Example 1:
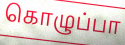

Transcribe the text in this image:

கொழுப்பா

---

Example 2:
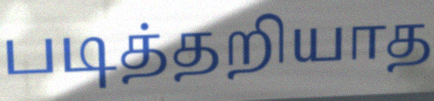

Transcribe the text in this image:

படித்தறியாத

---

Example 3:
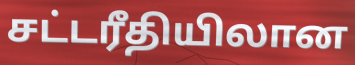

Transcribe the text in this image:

சட்டரீதியிலான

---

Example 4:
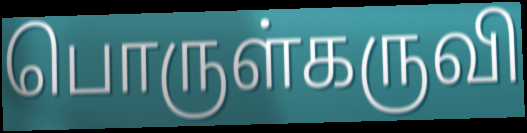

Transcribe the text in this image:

பொருள்கருவி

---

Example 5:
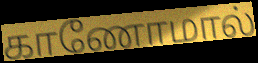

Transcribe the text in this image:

காணோமால்